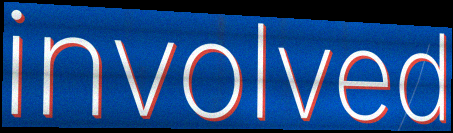
involved